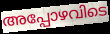
അപ്പോഴവിടെ